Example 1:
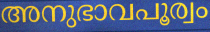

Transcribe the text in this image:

അനുഭാവപൂര്വം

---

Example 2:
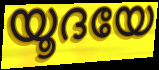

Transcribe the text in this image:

യൂദയേ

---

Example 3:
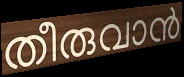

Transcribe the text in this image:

തീരുവാൻ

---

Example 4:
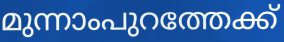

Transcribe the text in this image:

മുന്നാംപുറത്തേക്ക്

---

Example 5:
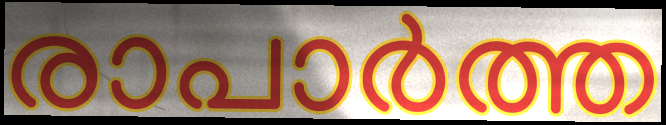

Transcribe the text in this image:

രാപാർത്ത